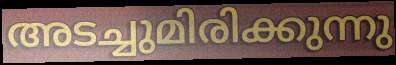
അടച്ചുമിരിക്കുന്നു